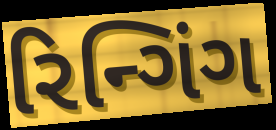
રિન્ગિંગ